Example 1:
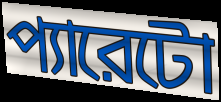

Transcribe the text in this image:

প্যারেটো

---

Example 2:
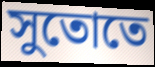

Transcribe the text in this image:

সুতোতে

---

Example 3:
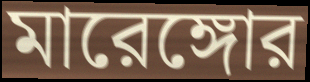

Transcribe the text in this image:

মারেঙ্গোর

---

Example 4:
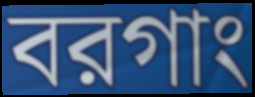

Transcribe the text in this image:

বরগাং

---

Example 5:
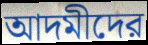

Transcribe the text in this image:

আদমীদের